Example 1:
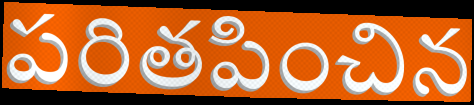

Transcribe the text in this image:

పరితపించిన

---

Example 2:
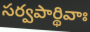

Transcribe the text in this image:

సర్వపార్థివాః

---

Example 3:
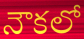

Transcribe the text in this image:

నౌకలో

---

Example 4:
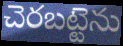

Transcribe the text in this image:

చెరబట్టెను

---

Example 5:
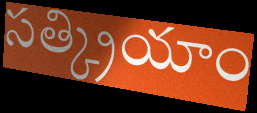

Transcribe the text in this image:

సత్క్రియాం